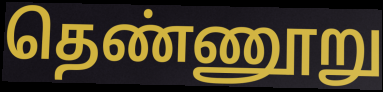
தெண்ணூறு